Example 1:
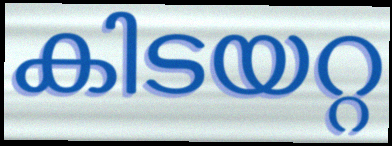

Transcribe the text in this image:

കിടയറ്റ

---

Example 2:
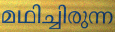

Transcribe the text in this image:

മഥിച്ചിരുന്ന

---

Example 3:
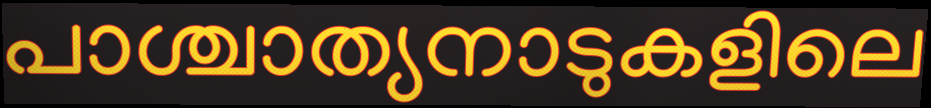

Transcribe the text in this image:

പാശ്ചാത്യനാടുകളിലെ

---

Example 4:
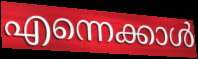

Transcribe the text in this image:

എന്നെക്കാൾ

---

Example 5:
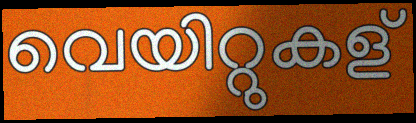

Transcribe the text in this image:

വെയിറ്റുകള്